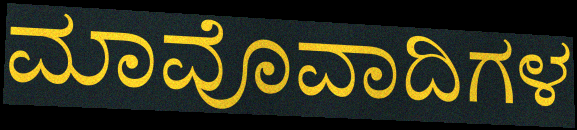
ಮಾವೊವಾದಿಗಳ